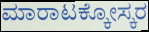
ಮಾರಾಟಕ್ಕೋಸ್ಕರ